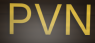
PVN